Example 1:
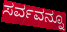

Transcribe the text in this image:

ಸರ್ವವನ್ನೂ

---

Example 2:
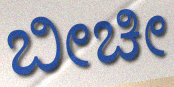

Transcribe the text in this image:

ಬೀಚೀ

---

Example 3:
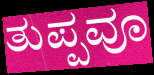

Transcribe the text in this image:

ತುಪ್ಪವೂ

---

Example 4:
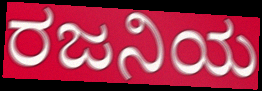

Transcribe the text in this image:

ರಜನಿಯ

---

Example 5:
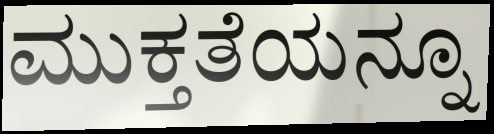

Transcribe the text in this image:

ಮುಕ್ತತೆಯನ್ನೂ